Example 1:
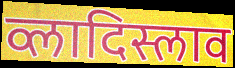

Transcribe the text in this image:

व्लादिस्लाव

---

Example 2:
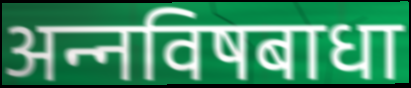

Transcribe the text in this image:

अन्नविषबाधा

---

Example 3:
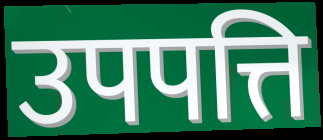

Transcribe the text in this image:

उपपत्ति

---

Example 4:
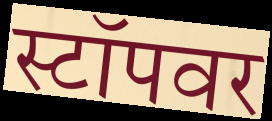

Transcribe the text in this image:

स्टॉपवर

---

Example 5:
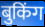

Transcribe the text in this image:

बुकिंग